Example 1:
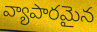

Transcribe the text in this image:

వ్యాపారమైన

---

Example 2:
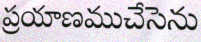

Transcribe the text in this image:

ప్రయాణముచేసెను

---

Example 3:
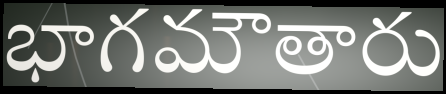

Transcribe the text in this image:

భాగమౌతారు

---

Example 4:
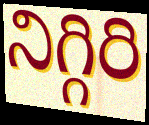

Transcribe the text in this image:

నిగ్గిరి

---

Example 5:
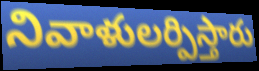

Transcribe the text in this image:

నివాళులర్పిస్తారు